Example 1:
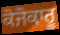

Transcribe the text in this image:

ਕੋਜੋਕਾਰੂ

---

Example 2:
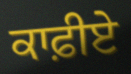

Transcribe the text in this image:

ਕਾਫ਼ੀਏ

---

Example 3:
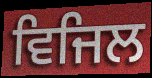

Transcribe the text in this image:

ਵਿਜਿਲ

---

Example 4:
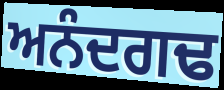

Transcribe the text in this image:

ਅਨੰਦਗਢ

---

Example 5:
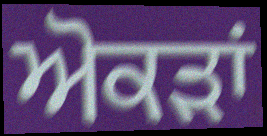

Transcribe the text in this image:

ਅੋਕੜਾਂ